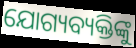
ଯୋଗ୍ୟବ୍ୟକ୍ତିଙ୍କୁ